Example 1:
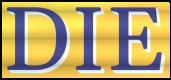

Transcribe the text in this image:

DIE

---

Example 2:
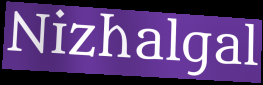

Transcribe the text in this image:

Nizhalgal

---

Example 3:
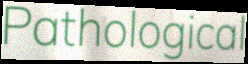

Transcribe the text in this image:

Pathological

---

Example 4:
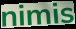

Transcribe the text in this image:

nimis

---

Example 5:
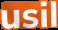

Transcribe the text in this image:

usil